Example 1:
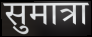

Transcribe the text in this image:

सुमात्रा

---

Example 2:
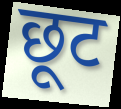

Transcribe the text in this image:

छूट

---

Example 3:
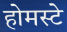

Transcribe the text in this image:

होमस्टे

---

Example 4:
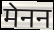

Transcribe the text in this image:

मेनन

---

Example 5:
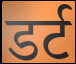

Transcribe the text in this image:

डर्ट